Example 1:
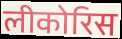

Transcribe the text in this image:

लीकोरिस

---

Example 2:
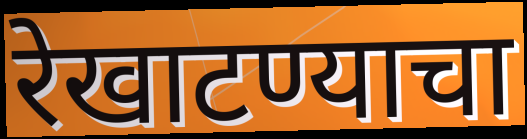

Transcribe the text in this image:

रेखाटण्याचा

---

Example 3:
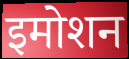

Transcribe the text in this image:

इमोशन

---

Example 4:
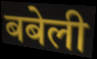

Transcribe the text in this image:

बबेली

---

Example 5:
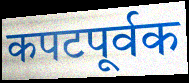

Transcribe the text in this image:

कपटपूर्वक